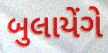
બુલાયેંગે